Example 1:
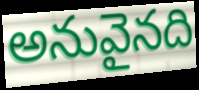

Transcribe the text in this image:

అనువైనది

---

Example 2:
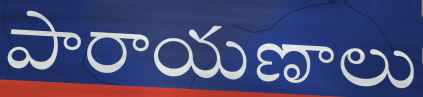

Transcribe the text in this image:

పారాయణాలు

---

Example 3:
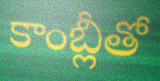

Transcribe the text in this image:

కాంబ్లీతో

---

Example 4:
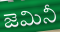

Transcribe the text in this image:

జెమినీ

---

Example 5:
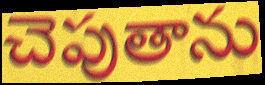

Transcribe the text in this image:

చెపుతాను